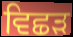
ਵਿਛਡ਼